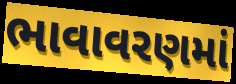
ભાવાવરણમાં